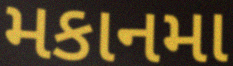
મકાનમા